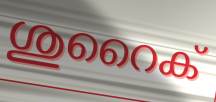
ശുറൈക്